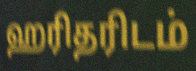
ஹரிதரிடம்